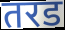
तरड